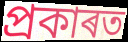
প্ৰকাৰত